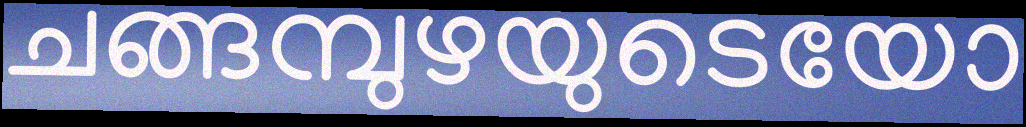
ചങ്ങമ്പുഴയുടെയോ